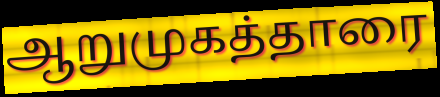
ஆறுமுகத்தாரை